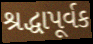
શ્રદ્ધાપૂર્વક